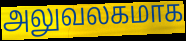
அலுவலகமாக